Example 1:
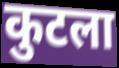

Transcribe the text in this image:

कुटला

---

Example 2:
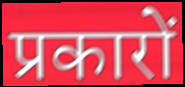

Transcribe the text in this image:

प्रकारों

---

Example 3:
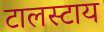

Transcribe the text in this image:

टालस्टाय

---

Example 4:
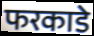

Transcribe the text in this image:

फरकाडे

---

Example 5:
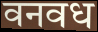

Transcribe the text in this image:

वनवध